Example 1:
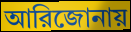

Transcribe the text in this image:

আরিজোনায়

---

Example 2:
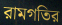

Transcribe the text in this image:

রামগতির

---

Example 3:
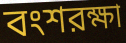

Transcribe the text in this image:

বংশরক্ষা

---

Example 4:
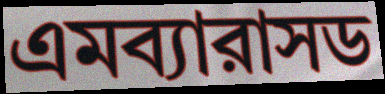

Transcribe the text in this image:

এমব্যারাসড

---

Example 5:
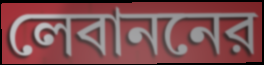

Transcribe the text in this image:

লেবাননের